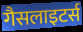
गैसलाइटर्स